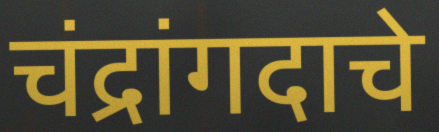
चंद्रांगदाचे